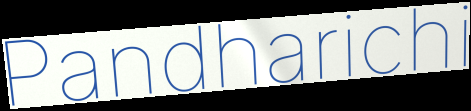
Pandharichi